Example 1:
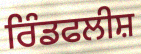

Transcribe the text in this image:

ਰਿੰਡਫਲੀਸ਼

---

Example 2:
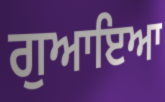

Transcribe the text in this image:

ਗੁਆਇਆ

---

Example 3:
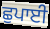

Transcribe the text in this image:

ਛੁਪਾਈ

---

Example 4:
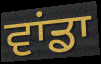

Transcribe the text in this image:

ਵਾਂਡਾ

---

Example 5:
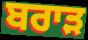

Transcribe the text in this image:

ਬਰਾੜ